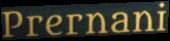
Prernani